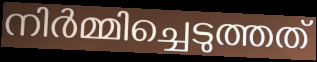
നിർമ്മിച്ചെടുത്തത്